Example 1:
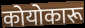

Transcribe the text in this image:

कोयोकारू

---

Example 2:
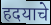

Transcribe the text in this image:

हदयाचे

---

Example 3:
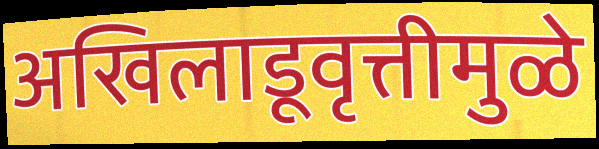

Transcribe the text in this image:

अखिलाडूवृत्तीमुळे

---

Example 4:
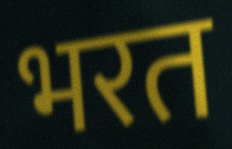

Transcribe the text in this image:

भरत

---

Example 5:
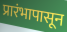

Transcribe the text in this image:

प्रारंभापासून